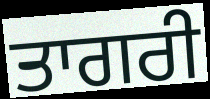
ਤਾਗਰੀ